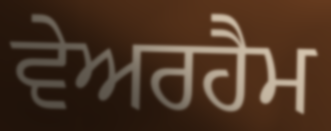
ਵੇਅਰਹੈਮ